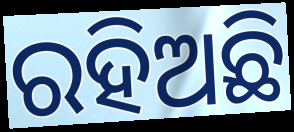
ରହିଅଛି